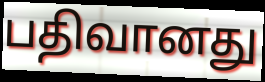
பதிவானது